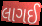
લાગઈ